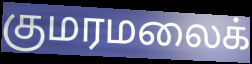
குமரமலைக்